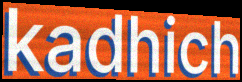
kadhich